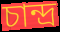
চান্দ্ৰ